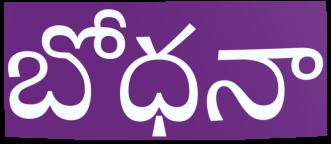
బోధనా